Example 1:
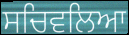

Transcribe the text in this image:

ਸਚਿਵਲਿਆ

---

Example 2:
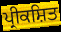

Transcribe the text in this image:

ਪ੍ਰੀਕਸ਼ਿਤ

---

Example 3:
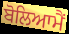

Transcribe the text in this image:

ਬੋਲਿਆਮੈਂ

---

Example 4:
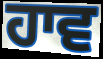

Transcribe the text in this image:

ਹਾਵ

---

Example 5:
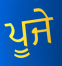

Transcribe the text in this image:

ਪੂਜੇ